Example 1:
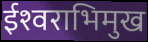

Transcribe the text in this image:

ईश्वराभिमुख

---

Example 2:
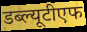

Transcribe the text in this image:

डब्ल्यूटीएफ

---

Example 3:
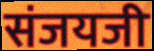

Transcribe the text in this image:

संजयजी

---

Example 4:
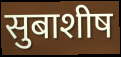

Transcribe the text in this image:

सुबाशीष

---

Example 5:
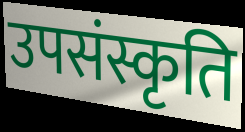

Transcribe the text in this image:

उपसंस्कृति